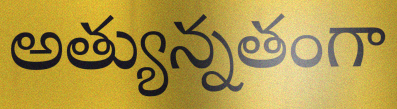
అత్యున్నతంగా